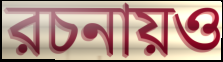
রচনায়ও